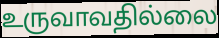
உருவாவதில்லை